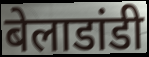
बेलाडांडी